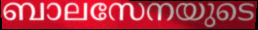
ബാലസേനയുടെ